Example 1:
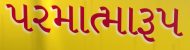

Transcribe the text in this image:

પરમાત્મારૂપ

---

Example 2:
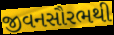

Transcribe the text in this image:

જીવનસૌરભથી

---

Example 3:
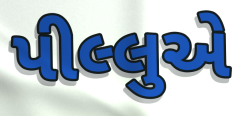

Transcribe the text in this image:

પીલ્લુએ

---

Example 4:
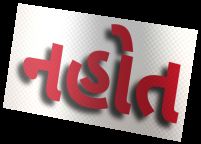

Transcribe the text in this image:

નહોત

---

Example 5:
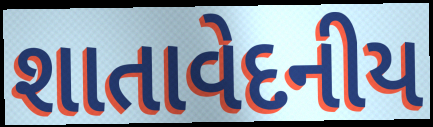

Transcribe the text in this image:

શાતાવેદનીય